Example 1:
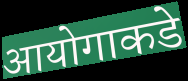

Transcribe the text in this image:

आयोगाकडे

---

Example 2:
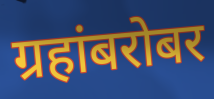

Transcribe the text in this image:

ग्रहांबरोबर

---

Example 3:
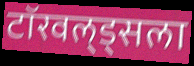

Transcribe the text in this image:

टॉरवल्ड्सला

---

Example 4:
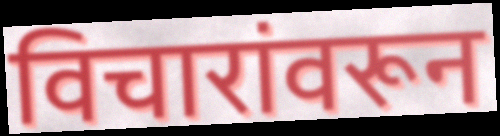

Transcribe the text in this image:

विचारांवरून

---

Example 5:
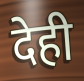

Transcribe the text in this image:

देही